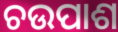
ଚଉପାଶ